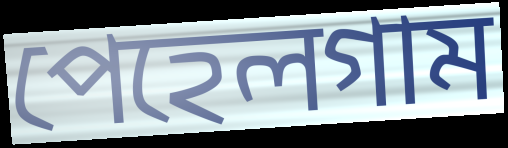
পেহেলগাম